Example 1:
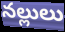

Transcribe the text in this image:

నల్లులు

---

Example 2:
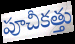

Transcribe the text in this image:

పూచీకత్తు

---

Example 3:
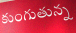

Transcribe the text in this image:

కుంగుతున్న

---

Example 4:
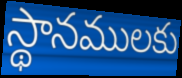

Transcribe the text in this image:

స్థానములకు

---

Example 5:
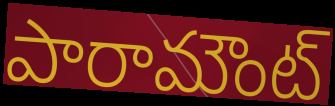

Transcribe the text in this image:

పారామౌంట్